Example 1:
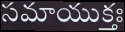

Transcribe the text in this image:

సమాయుక్తః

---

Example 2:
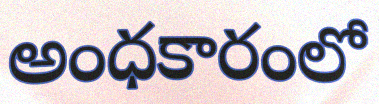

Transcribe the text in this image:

అంధకారంలో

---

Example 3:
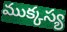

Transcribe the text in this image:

ముక్కస్య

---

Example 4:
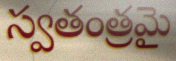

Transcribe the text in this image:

స్వతంత్రమై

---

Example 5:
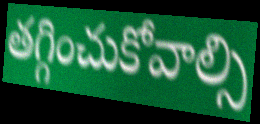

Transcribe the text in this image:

తగ్గించుకోవాల్సి